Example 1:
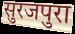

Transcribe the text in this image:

सुरजपुरा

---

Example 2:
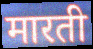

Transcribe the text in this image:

मारती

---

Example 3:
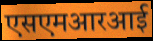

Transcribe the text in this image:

एसएमआरआई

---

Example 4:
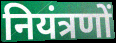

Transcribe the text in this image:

नियंत्रणों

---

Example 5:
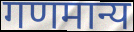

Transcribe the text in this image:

गणमान्य